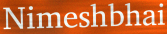
Nimeshbhai